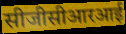
सीजीसीआरआई